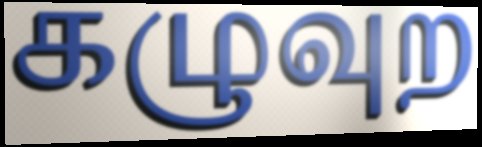
கழுவுற